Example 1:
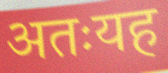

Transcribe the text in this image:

अतःयह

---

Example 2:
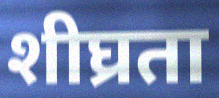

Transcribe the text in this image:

शीघ्रता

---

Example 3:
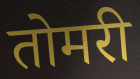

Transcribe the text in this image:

तोमरी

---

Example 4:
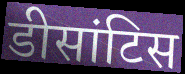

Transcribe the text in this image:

डीसांटिस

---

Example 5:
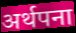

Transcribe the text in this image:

अर्थपना